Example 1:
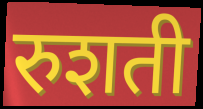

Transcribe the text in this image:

रुशती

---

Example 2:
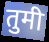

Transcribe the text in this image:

तुमी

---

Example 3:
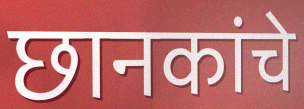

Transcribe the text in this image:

छानकांचे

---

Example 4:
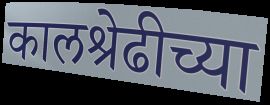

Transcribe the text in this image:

कालश्रेढीच्या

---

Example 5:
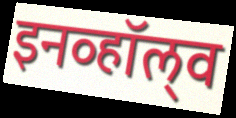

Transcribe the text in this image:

इनव्हॉल्व